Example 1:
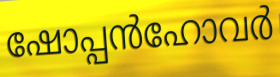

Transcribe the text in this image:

ഷോപ്പൻഹോവർ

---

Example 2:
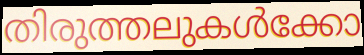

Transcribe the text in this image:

തിരുത്തലുകൾക്കോ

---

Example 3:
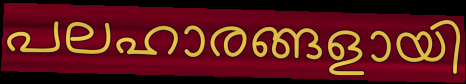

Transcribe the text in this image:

പലഹാരങ്ങളായി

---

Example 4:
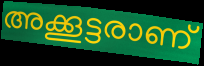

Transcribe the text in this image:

അക്കൂട്ടരാണ്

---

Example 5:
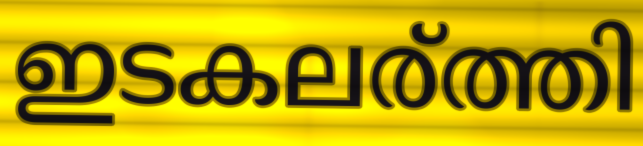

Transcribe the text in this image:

ഇടകലര്ത്തി